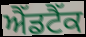
ਐੱਡਟੈੱਕ